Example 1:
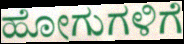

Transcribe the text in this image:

ಹೋಗುಗಳಿಗೆ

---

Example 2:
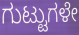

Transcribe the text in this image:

ಗುಟ್ಟುಗಳೇ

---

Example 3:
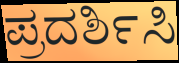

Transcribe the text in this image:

ಪ್ರದರ್ಶಿಸಿ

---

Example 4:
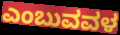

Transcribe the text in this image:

ಎಂಬುವವಳ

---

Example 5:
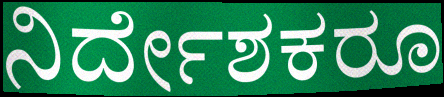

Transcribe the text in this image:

ನಿರ್ದೇಶಕರೂ